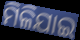
ମିଳିଯାଇ